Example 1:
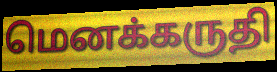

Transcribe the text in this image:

மெனக்கருதி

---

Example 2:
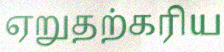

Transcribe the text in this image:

ஏறுதற்கரிய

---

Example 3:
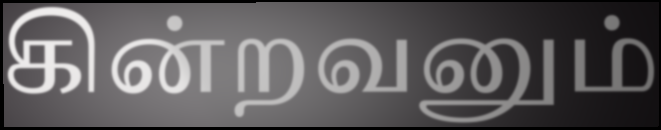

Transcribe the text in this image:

கின்றவனும்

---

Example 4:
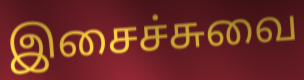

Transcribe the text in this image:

இசைச்சுவை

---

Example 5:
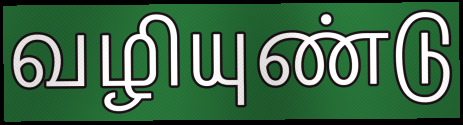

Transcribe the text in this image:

வழியுண்டு